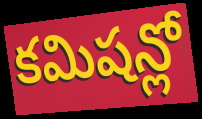
కమిషన్లో